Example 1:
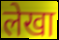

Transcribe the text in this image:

लेखा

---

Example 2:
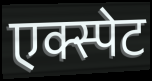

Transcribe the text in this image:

एक्स्पेट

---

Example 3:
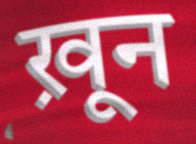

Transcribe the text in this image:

ख़ून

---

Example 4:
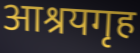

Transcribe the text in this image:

आश्रयगृह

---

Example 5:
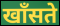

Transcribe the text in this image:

खाँसते